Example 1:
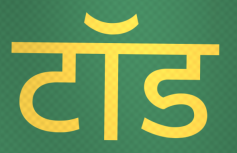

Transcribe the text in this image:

टॉड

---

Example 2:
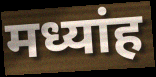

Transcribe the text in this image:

मध्यांह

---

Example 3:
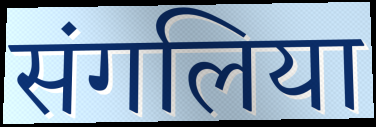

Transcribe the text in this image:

संगलिया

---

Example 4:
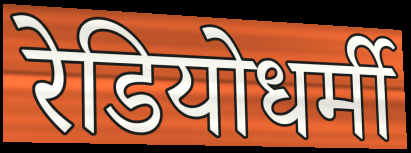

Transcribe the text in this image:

रेडियोधर्मी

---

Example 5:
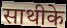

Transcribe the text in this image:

साथीके